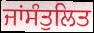
ਜਾਂਸੰਤੁਲਿਤ